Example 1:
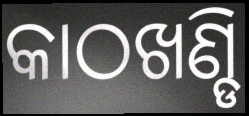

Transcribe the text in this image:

କାଠଖଣ୍ଡି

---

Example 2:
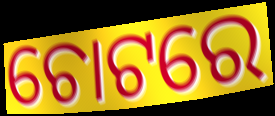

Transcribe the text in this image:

ଚୋଟରେ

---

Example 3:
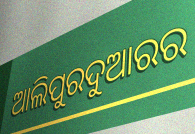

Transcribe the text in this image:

ଆଲିପୁରଦୁଆରର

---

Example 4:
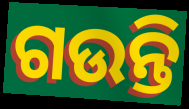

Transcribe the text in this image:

ଗଉନ୍ତି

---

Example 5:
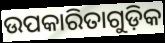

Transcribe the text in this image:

ଉପକାରିତାଗୁଡ଼ିକ